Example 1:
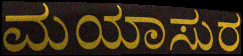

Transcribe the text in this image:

ಮಯಾಸುರ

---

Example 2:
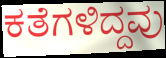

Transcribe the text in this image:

ಕತೆಗಳಿದ್ದವು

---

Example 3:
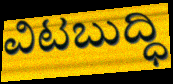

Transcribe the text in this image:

ವಿಟಬುದ್ಧಿ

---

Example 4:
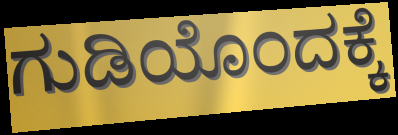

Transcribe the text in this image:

ಗುಡಿಯೊಂದಕ್ಕೆ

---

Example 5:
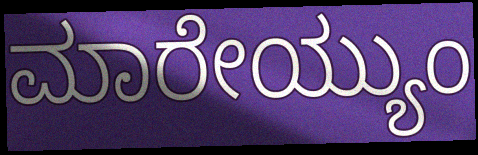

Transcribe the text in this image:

ಮಾರೇಯ್ಯುಂ